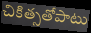
చికిత్సతోపాటు